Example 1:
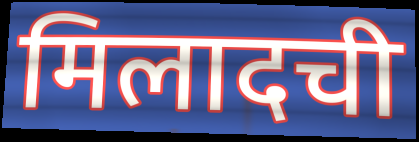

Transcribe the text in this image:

मिलादची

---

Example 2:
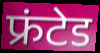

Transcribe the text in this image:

फ्रंटेड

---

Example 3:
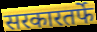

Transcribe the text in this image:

सरकारतर्फे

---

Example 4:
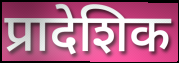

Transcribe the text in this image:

प्रादेशिक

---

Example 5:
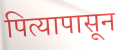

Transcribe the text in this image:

पित्यापासून